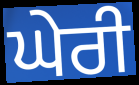
ਘੇਰੀ